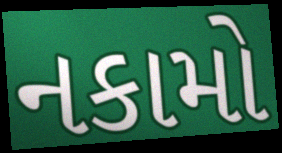
નકામો